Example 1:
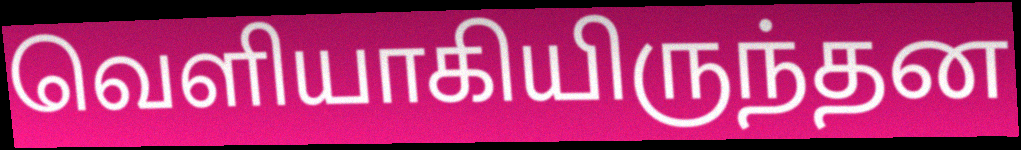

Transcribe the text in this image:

வெளியாகியிருந்தன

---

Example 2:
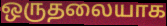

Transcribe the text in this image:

ஒருதலையாக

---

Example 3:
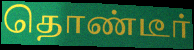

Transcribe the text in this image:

தொண்டீர்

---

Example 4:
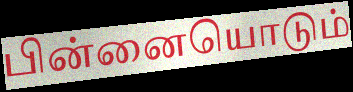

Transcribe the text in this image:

பின்னையொடும்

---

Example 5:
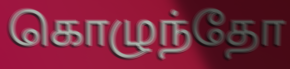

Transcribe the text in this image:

கொழுந்தோ